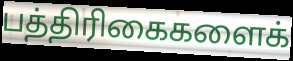
பத்திரிகைகளைக்